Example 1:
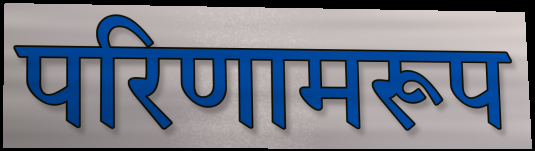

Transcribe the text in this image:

परिणामरूप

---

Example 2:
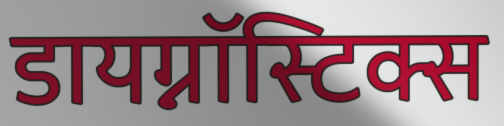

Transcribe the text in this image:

डायग्नॉस्टिक्स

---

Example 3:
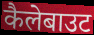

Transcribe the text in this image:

कैलेबाउट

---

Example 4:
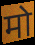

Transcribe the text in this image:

मो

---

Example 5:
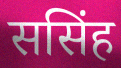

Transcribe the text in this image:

ससिंह